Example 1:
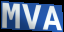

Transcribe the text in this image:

MVA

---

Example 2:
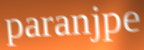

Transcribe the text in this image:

paranjpe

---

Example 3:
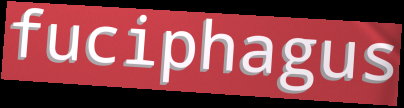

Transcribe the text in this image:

fuciphagus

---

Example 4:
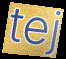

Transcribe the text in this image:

tej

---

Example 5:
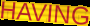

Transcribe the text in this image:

HAVING